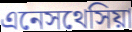
এনেসথেসিয়া